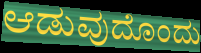
ಆಡುವುದೊಂದು